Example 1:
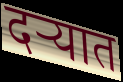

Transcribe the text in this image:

दऱ्यात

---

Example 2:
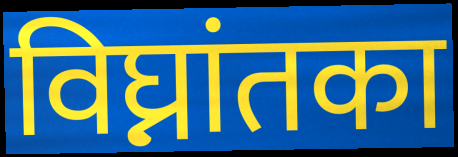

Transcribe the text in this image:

विघ्नांतका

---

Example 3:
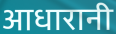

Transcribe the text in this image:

आधारानी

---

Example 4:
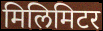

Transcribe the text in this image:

मिलिमिटर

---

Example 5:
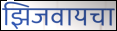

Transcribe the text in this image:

झिजवायचा